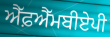
ਐੱਫ਼ਐੱਮਬੀਏਪੀ